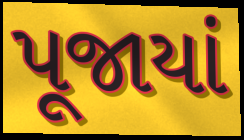
પૂજાયાં